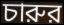
চারুর